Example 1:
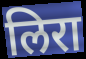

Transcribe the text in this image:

लिरा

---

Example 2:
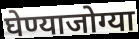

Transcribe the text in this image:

घेण्याजोग्या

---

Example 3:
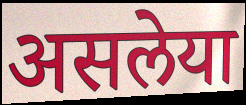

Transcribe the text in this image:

असलेया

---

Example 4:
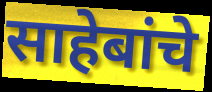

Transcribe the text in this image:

साहेबांचे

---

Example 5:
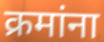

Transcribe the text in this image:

क्रमांना